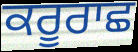
ਕਰੂਰਾਛ